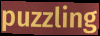
puzzling